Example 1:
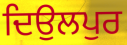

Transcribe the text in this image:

ਦਿਉਲਪੁਰ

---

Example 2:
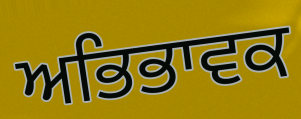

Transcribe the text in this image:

ਅਭਿਭਾਵਕ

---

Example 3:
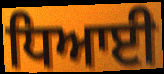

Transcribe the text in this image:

ਧਿਆਈ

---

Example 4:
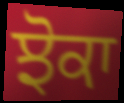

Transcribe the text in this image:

ਝੋਕਾ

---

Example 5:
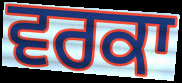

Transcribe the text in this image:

ਵਰਕਾ